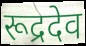
रूद्रदेव